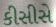
કીસીસે